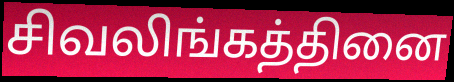
சிவலிங்கத்தினை